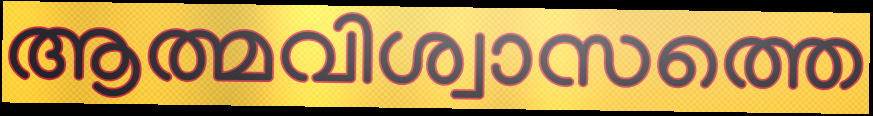
ആത്മവിശ്വാസത്തെ